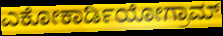
ಎಕೋಕಾರ್ಡಿಯೋಗ್ರಾಮ್